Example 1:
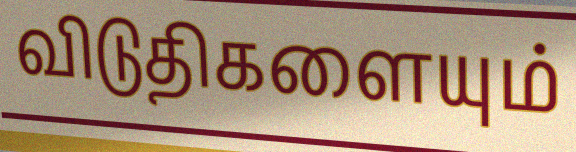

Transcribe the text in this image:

விடுதிகளையும்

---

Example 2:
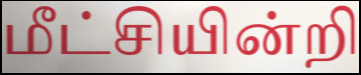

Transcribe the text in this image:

மீட்சியின்றி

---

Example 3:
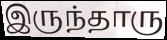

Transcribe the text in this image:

இருந்தாரு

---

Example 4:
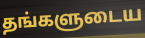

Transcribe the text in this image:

தங்களுடைய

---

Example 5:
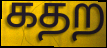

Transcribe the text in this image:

கதற